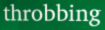
throbbing